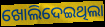
ଖୋଲିଦେଇଥିଲା